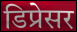
डिप्रेसर